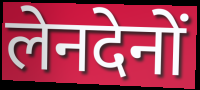
लेनदेनों